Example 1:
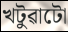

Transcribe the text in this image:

খটুৱাটো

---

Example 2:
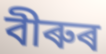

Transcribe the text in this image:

বীৰুৰ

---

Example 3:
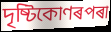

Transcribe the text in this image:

দৃষ্টিকোণৰপৰা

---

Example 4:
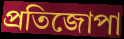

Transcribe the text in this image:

প্ৰতিজোপা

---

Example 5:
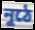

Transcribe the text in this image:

নুঠে